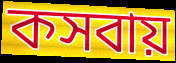
কসবায়